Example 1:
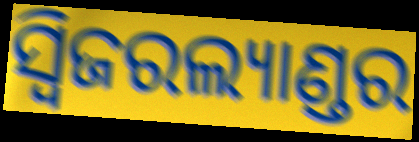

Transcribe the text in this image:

ସ୍ୱିଜରଲ୍ୟାଣ୍ଡର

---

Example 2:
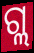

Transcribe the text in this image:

ଗ୍ଲ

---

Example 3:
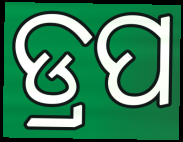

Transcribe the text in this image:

ଡ୍ରପ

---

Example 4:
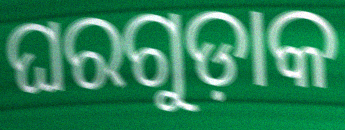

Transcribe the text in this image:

ଘରଗୁଡ଼ାକ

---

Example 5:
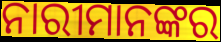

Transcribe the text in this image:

ନାରୀମାନଙ୍କର